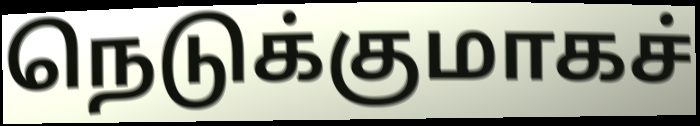
நெடுக்குமாகச்